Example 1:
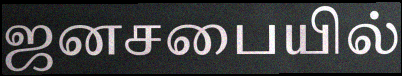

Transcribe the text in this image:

ஜனசபையில்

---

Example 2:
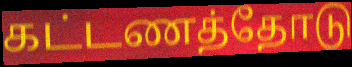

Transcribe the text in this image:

கட்டணத்தோடு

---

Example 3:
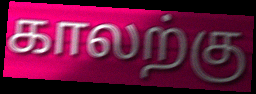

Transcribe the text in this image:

காலற்கு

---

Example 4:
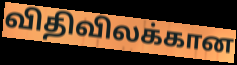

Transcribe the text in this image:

விதிவிலக்கான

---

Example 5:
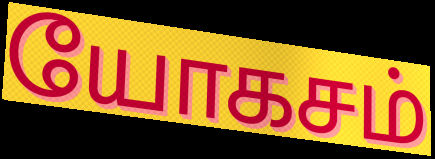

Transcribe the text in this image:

யோகசம்